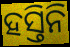
ହସ୍ତିନି